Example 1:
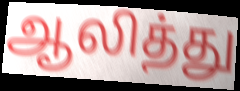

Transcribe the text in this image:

ஆலித்து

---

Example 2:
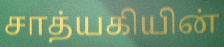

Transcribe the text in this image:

சாத்யகியின்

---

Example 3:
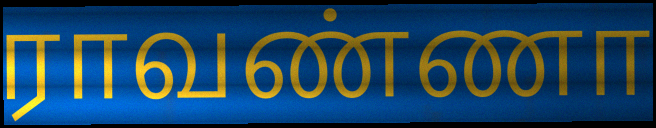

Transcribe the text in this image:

ராவண்ணா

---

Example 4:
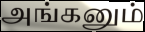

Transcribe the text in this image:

அங்கனும்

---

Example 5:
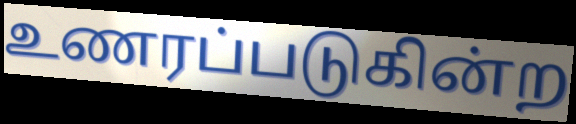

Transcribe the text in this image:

உணரப்படுகின்ற